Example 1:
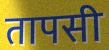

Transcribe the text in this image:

तापसी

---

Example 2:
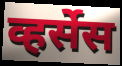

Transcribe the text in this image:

व्हर्सेस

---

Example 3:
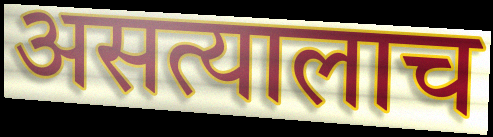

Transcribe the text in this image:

असत्यालाच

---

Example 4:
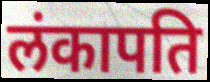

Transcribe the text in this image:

लंकापति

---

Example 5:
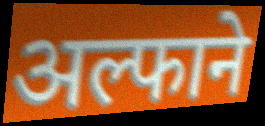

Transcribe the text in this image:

अल्फाने